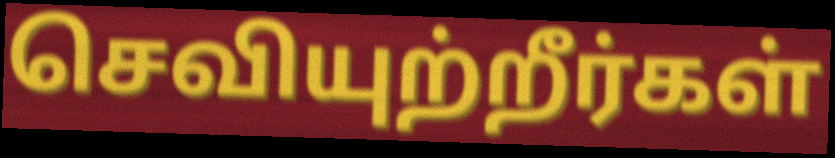
செவியுற்றீர்கள்